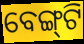
ବେଙ୍ଗ୍‌ଟି